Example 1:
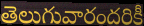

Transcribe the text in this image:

తెలుగువారందరికీ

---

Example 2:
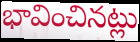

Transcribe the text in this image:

భావించినట్లు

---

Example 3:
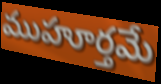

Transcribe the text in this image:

ముహూర్తమే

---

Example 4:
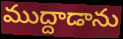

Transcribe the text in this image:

ముద్దాడాను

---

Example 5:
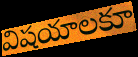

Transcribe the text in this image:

విషయాలకూ